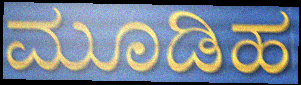
ಮೂಡಿಹ